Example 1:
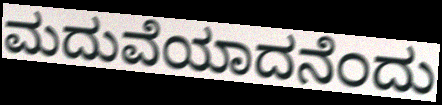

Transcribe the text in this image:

ಮದುವೆಯಾದನೆಂದು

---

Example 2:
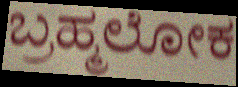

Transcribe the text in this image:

ಬ್ರಹ್ಮಲೋಕ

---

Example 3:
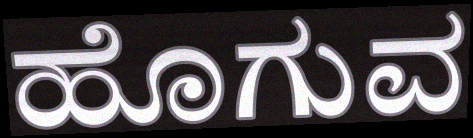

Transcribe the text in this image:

ಹೊಗುವ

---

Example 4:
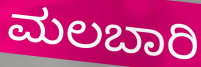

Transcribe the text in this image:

ಮಲಬಾರಿ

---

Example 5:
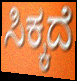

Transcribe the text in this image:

ಸಿಕ್ಕದೆ